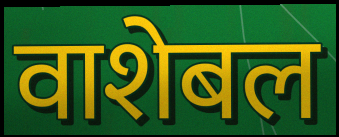
वाशेबल